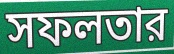
সফলতার